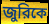
জুরিকে